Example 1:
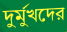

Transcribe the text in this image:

দুর্মুখদের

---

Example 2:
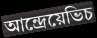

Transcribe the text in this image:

আন্দ্রেয়েভিচ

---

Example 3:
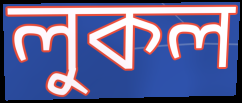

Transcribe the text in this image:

লুকল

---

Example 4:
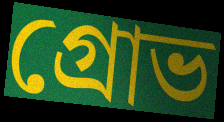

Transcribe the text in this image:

গ্রোভ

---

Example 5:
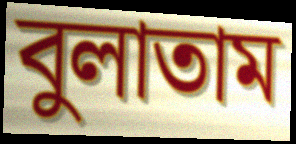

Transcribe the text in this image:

বুলাতাম